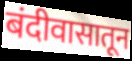
बंदीवासातून